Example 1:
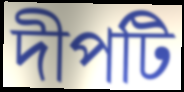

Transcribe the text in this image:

দীপটি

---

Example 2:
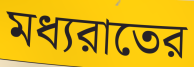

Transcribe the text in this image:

মধ্যরাতের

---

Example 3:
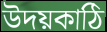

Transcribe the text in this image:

উদয়কাঠি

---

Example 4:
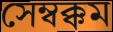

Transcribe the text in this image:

সেম্বক্কম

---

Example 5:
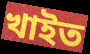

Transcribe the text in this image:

খাইত